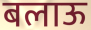
बलाऊ